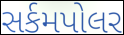
સર્કમપોલર